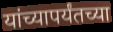
यांच्यापर्यंतच्या